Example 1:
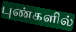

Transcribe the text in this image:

புண்களில்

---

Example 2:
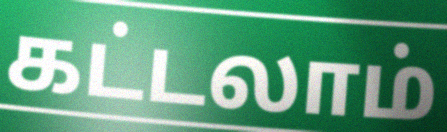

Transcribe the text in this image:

கட்டலாம்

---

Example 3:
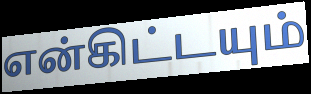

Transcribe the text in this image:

என்கிட்டயும்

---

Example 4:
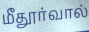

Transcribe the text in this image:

மீதூர்வால்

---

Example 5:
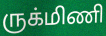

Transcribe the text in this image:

ருக்மிணி